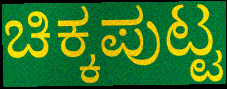
ಚಿಕ್ಕಪುಟ್ಟ